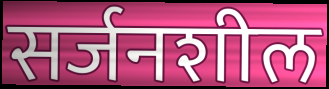
सर्जनशील